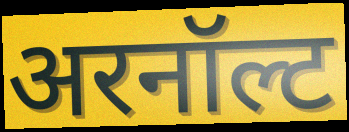
अरनॉल्ट